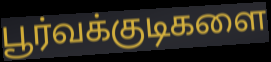
பூர்வக்குடிகளை